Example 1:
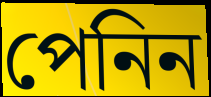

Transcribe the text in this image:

পেনিন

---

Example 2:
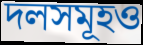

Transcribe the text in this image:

দলসমূহও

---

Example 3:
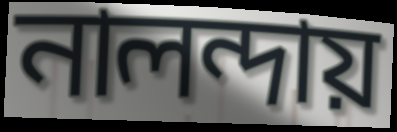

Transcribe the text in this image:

নালন্দায়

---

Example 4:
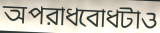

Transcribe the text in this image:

অপরাধবোধটাও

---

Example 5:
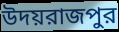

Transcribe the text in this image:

উদয়রাজপুর